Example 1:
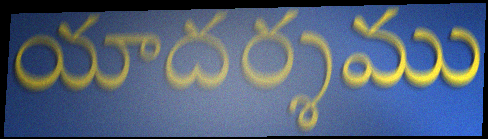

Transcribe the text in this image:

యాదర్శము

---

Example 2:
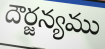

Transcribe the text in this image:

దౌర్జన్యము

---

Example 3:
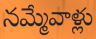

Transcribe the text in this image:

నమ్మేవాళ్లు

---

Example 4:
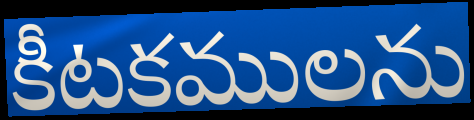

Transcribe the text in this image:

కీటకములను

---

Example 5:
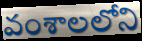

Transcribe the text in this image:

వంశాలలోని